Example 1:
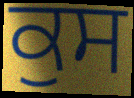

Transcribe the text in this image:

ਕੁਸ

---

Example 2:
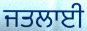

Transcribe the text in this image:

ਜਤਲਾਈ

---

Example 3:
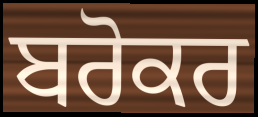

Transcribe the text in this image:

ਬਰੋਕਰ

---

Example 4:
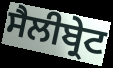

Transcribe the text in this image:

ਸੈਲੀਬ੍ਰੇਟ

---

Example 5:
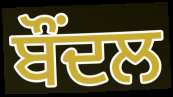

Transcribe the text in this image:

ਬੌਂਦਲ